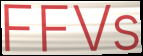
FFVs